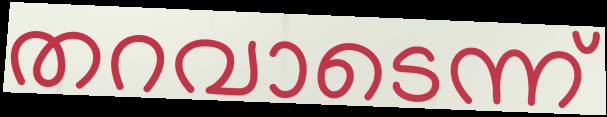
തറവാടെന്ന്